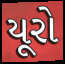
યૂરો